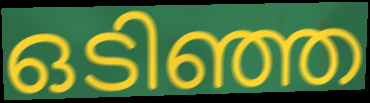
ഒടിഞ്ഞ